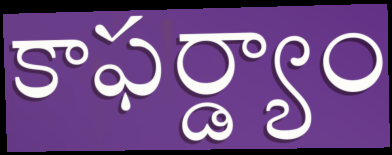
కాఫర్డ్యాం